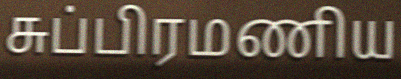
சுப்பிரமணிய